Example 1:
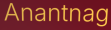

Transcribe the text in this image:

Anantnag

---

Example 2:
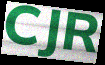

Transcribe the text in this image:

CJR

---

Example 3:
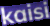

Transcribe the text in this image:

kaisi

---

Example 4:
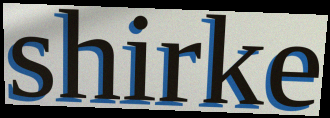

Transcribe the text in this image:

shirke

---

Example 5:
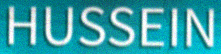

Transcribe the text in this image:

HUSSEIN